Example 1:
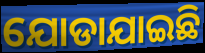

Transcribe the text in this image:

ଯୋଡାଯାଇଛି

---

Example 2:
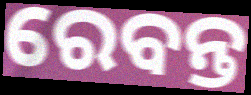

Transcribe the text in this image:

ରେବନ୍ତ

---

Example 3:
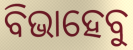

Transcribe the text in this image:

ବିଭାହେବୁ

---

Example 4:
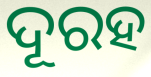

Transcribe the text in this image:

ଦୂରହ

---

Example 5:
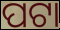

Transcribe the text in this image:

ପଟା